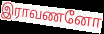
இராவணனோ